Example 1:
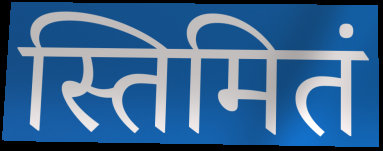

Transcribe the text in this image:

स्तिमितं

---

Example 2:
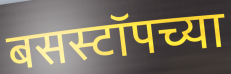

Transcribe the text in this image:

बसस्टॉपच्या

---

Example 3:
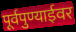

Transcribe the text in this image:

पूर्वपुण्याईवर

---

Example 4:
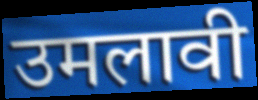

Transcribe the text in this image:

उमलावी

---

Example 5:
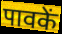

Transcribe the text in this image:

पावकें